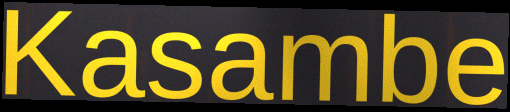
Kasambe